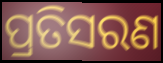
ପ୍ରତିସରଣ